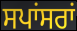
ਸਪਾਂਸਰਾਂ